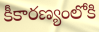
కీకారణ్యంలోకి